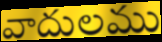
వాదులము